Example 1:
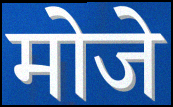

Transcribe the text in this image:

मोजे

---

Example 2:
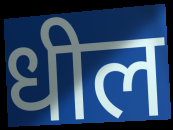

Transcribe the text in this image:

धील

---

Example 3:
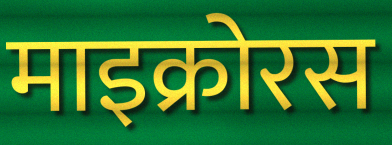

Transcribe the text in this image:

माइक्रोरस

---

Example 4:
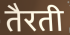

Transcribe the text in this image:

तैरती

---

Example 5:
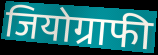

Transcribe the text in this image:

जियोग्राफी